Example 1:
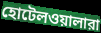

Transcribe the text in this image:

হোটেলওয়ালারা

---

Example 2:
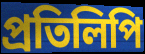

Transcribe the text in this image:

প্রতিলিপি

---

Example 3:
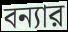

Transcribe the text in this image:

বন্যার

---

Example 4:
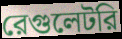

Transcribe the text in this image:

রেগুলেটরি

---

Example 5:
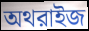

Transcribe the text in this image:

অথরাইজ